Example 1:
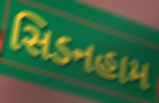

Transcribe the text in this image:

સિડનહામ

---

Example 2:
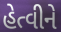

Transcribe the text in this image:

હેત્વીને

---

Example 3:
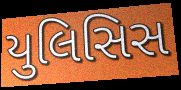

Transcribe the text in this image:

યુલિસિસ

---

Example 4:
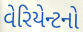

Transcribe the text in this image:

વેરિયેન્ટનો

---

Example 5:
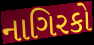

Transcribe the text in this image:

નાગિરકો